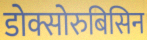
डोक्सोरुबिसिन